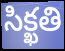
సిక్ఖతి